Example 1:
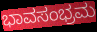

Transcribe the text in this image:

ಭಾವಸಂಭ್ರಮ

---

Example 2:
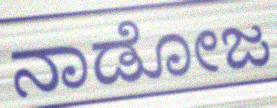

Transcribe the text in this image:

ನಾಡೋಜ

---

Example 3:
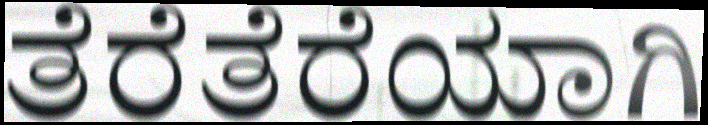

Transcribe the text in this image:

ತೆರೆತೆರೆಯಾಗಿ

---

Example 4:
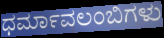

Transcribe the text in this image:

ಧರ್ಮಾವಲಂಬಿಗಳು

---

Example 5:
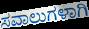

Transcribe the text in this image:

ಸವಾಲುಗಳಾಗಿ